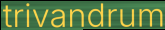
trivandrum